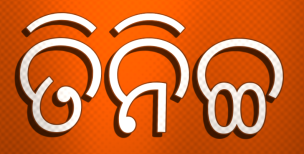
ତିନିଚ୍ଚ